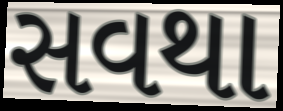
સવથા